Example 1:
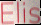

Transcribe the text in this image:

Elis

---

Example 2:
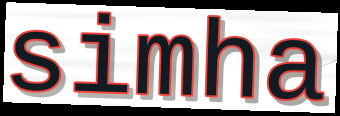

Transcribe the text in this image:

simha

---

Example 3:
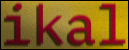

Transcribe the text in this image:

ikal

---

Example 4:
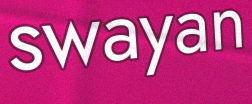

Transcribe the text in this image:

swayan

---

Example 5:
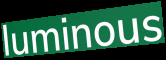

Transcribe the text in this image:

luminous